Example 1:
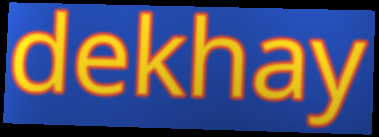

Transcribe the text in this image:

dekhay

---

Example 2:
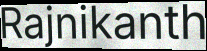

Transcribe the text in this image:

Rajnikanth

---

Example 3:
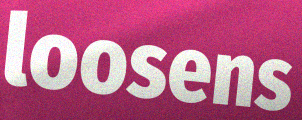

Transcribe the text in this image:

loosens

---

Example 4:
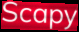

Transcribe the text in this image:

Scapy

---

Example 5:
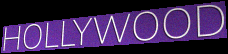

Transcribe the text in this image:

HOLLYWOOD